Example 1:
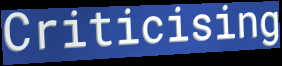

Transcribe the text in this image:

Criticising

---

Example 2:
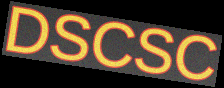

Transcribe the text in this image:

DSCSC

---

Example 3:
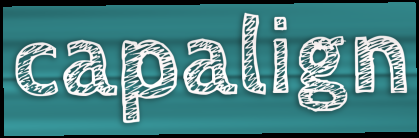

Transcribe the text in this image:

capalign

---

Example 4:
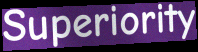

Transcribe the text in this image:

Superiority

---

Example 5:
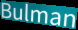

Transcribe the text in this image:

Bulman